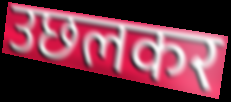
उछलकर